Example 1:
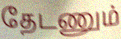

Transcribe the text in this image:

தேடணும்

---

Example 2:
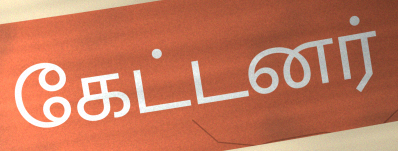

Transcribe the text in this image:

கேட்டனர்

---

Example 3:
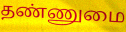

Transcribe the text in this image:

தண்ணுமை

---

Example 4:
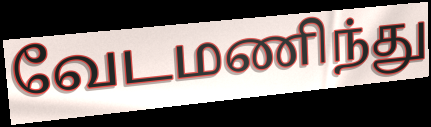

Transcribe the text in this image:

வேடமணிந்து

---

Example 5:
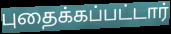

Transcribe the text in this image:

புதைக்கப்பட்டார்